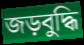
জড়বুদ্ধি